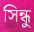
সিন্ধু